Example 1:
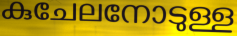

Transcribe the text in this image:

കുചേലനോടുള്ള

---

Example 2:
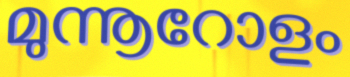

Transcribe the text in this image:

മുന്നൂറോളം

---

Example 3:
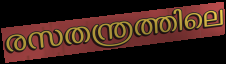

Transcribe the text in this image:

രസതന്ത്രത്തിലെ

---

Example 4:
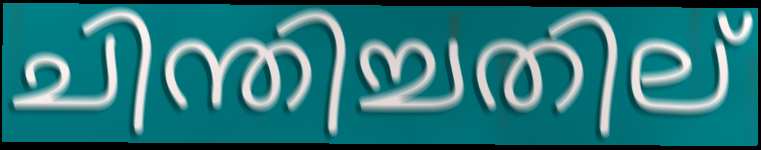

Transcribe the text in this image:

ചിന്തിച്ചതില്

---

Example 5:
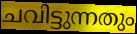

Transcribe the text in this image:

ചവിട്ടുന്നതും